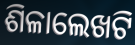
ଶିଳାଲେଖଟି